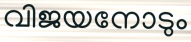
വിജയനോടും